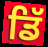
ਡਿੱ